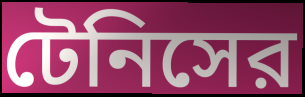
টেনিসের